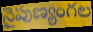
నైపుణ్యంగల